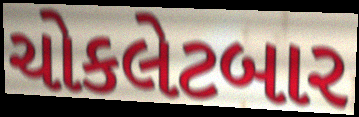
ચોકલેટબાર